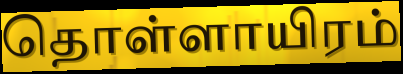
தொள்ளாயிரம்